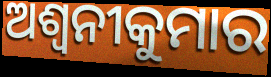
ଅଶ୍ୱନୀକୁମାର